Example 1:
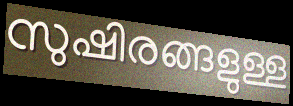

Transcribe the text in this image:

സുഷിരങ്ങളുള്ള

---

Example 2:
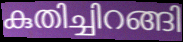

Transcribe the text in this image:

കുതിച്ചിറങ്ങി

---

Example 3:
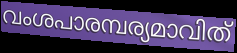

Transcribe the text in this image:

വംശപാരമ്പര്യമാവിത്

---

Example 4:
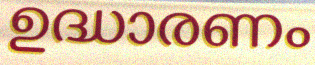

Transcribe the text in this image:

ഉദ്ധാരണം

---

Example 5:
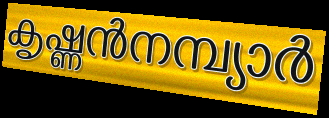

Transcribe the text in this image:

കൃഷ്ണൻനമ്പ്യാർ